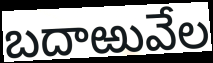
బదాఱువేల